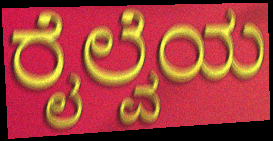
ರೈಲ್ವೆಯ